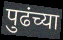
पुढंच्या